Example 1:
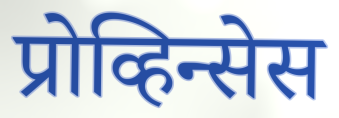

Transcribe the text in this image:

प्रोव्हिन्सेस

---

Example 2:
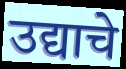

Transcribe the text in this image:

उद्याचे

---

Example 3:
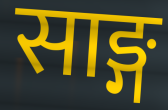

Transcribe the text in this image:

साङ्ग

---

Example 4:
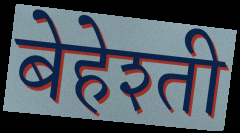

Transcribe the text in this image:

बेहेश्ती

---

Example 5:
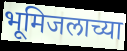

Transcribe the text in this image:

भूमिजलाच्या